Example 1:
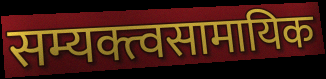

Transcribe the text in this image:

सम्यक्त्वसामायिक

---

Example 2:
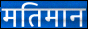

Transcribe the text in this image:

मतिमान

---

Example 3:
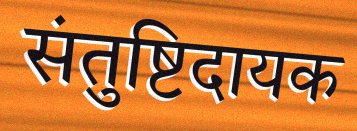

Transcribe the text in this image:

संतुष्टिदायक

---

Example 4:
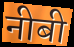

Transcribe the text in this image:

नीबी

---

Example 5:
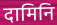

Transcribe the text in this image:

दामिनि